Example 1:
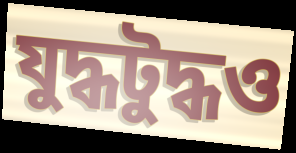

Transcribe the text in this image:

যুদ্ধটুদ্ধও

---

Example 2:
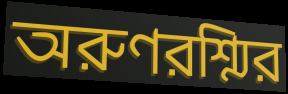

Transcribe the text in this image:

অরুণরশ্মির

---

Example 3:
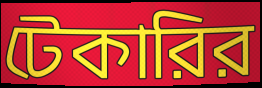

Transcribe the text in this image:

টেকারির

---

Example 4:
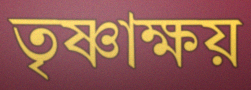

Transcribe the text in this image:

তৃষ্ণাক্ষয়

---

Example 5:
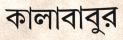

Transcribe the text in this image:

কালাবাবুর